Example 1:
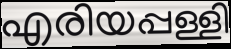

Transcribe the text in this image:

എരിയപ്പള്ളി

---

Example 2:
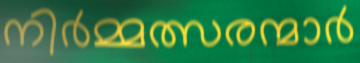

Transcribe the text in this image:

നിർമ്മത്സരന്മാർ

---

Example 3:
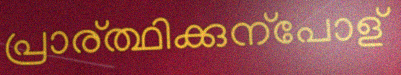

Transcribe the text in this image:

പ്രാര്ത്ഥിക്കുന്പോള്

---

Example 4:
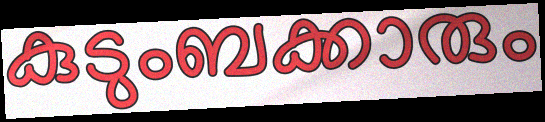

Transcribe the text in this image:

കുടുംബക്കാരും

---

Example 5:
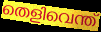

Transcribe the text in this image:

തെളിവെന്ത്